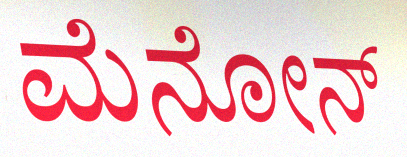
ಮೆನೋನ್